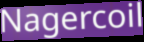
Nagercoil